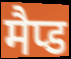
मैप्ड